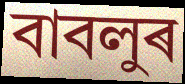
বাবলুৰ